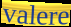
valere